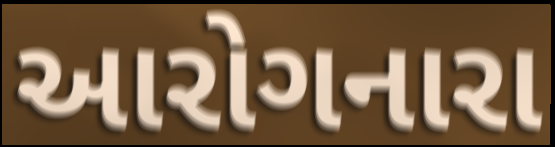
આરોગનારા